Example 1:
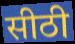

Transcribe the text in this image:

सीठी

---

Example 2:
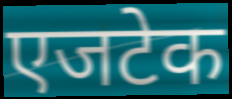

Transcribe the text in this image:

एजटेक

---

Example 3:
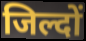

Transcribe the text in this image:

जिल्दों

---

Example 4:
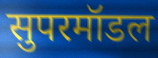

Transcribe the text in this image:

सुपरमॉडल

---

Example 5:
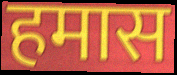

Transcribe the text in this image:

हमास